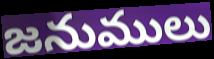
జనుములు